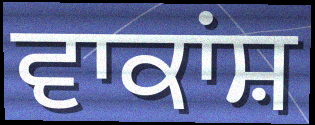
ਵਾਕਾਂਸ਼